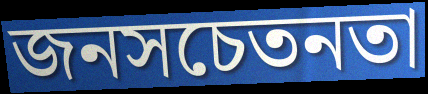
জনসচেতনতা